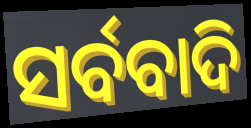
ସର୍ବବାଦି